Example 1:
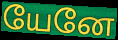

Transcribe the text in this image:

யேனே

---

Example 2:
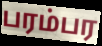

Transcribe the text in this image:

பரம்பர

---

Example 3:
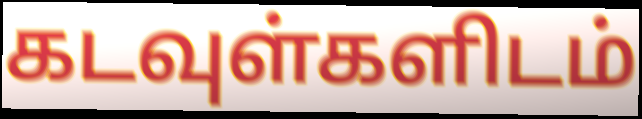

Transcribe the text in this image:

கடவுள்களிடம்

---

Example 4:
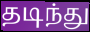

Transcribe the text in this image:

தடிந்து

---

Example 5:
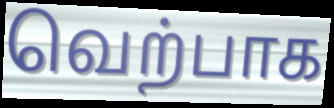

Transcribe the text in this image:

வெற்பாக